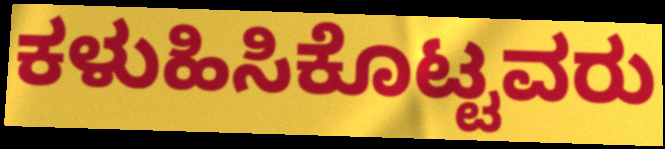
ಕಳುಹಿಸಿಕೊಟ್ಟವರು